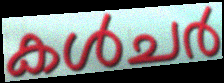
കൾചർ